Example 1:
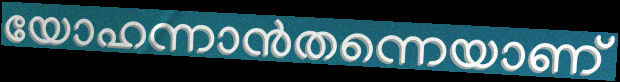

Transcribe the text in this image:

യോഹന്നാൻതന്നെയാണ്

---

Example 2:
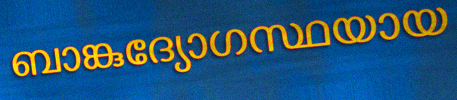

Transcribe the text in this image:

ബാങ്കുദ്യോഗസ്ഥയായ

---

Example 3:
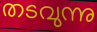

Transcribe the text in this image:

തടവുന്നു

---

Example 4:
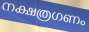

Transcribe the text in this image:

നക്ഷത്രഗണം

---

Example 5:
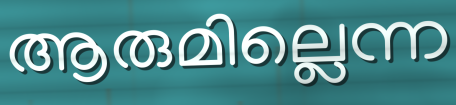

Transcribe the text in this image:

ആരുമില്ലെന്ന